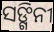
ସଙ୍ଗିନୀ